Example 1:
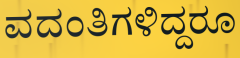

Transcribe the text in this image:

ವದಂತಿಗಳಿದ್ದರೂ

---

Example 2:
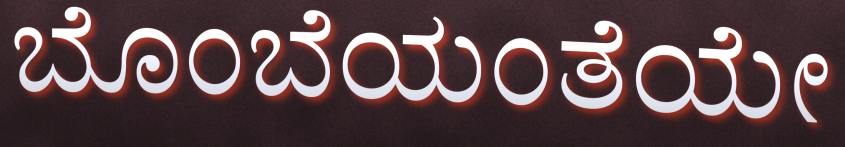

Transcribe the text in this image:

ಬೊಂಬೆಯಂತೆಯೇ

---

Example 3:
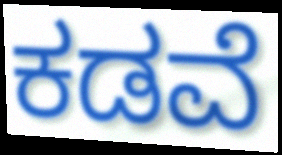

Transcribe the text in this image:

ಕಡವೆ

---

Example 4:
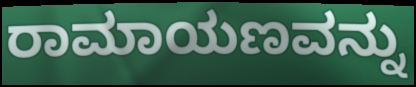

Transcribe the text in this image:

ರಾಮಾಯಣವನ್ನು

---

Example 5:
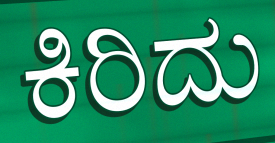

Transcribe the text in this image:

ಕಿರಿದು